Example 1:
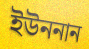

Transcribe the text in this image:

ইউননান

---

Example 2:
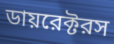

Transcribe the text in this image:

ডায়রেক্টরস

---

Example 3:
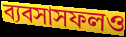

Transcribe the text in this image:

ব্যবসাসফলও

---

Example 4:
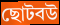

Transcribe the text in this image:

ছোটবউ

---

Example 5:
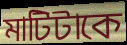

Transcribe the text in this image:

মাটিটাকে